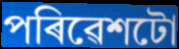
পৰিৱেশটো